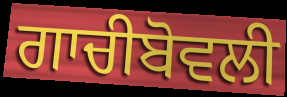
ਗਾਚੀਬੋਵਲੀ